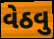
વેઠવુ